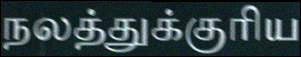
நலத்துக்குரிய